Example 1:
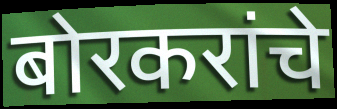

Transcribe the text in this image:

बोरकरांचे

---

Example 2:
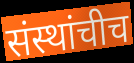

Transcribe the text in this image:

संस्थांचीच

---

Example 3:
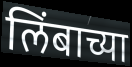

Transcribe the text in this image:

लिंबाच्या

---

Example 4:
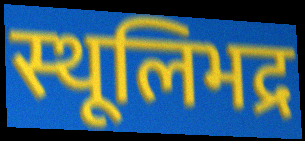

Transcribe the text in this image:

स्थूलिभद्र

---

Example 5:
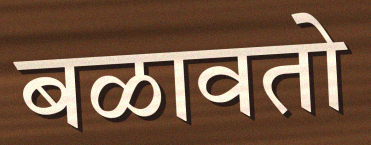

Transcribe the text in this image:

बळावतो